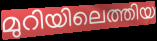
മുറിയിലെത്തിയ